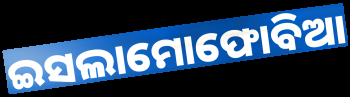
ଇସଲାମୋଫୋବିଆ